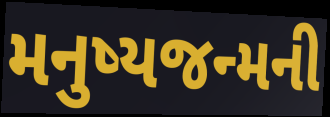
મનુષ્યજન્મની